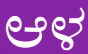
ಆಳ